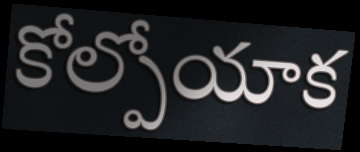
కోల్పోయాక